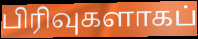
பிரிவுகளாகப்